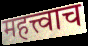
महत्त्वाच